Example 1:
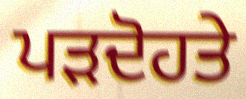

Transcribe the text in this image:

ਪੜਦੋਹਤੇ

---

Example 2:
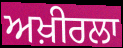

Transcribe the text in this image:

ਅਖ਼ੀਰਲਾ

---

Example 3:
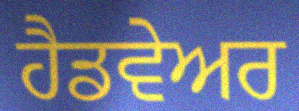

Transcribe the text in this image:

ਹੈਡਵੇਅਰ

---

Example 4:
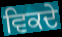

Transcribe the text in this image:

ਵਿਕਦੇ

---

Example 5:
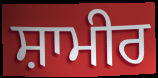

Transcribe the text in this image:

ਸ਼ਾਮੀਰ